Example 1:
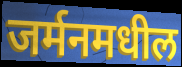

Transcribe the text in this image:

जर्मनमधील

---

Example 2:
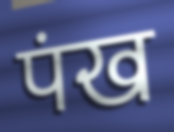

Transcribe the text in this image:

पंख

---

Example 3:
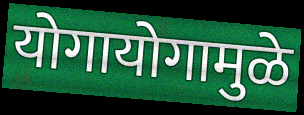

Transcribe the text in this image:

योगायोगामुळे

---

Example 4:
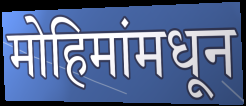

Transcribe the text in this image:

मोहिमांमधून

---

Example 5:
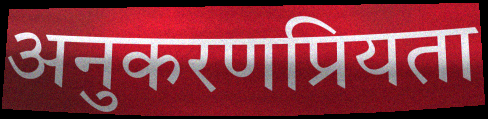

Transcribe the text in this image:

अनुकरणप्रियता